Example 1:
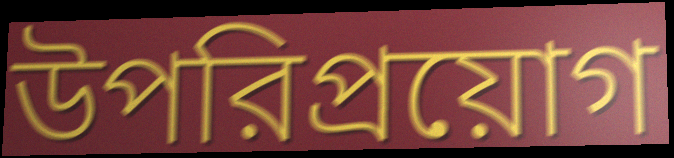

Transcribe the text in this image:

উপরিপ্রয়োগ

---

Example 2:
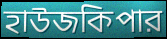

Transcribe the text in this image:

হাউজকিপার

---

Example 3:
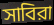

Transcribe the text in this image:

সাবিরা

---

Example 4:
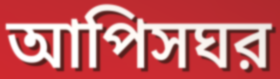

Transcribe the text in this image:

আপিসঘর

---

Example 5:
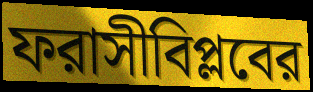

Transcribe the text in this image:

ফরাসীবিপ্লবের